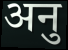
अनु